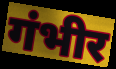
गंभीर